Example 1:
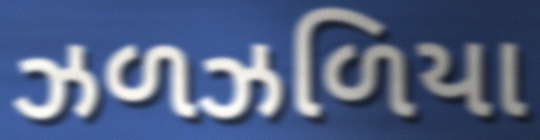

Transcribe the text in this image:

ઝળઝળિયા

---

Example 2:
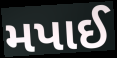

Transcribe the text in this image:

મપાઈ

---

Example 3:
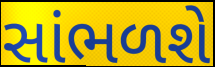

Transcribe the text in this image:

સાંભળશે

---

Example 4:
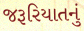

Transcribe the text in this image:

જરૂરિયાતનું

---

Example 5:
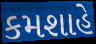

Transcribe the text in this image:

કમશાહે